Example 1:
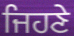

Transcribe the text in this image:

ਜਿਹਣੇ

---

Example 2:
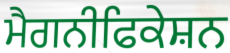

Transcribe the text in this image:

ਮੈਗਨੀਫਿਕੇਸ਼ਨ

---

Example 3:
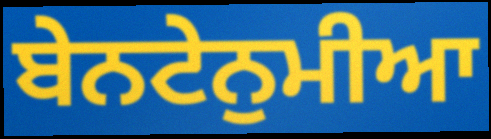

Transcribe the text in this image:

ਬੇਨਟੇਨੁਮੀਆ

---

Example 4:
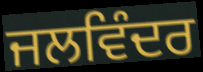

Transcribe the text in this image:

ਜਲਵਿੰਦਰ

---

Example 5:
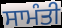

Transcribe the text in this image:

ਸਾਮੰਤੀ